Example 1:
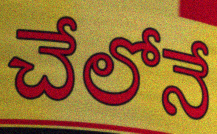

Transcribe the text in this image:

చేలోనే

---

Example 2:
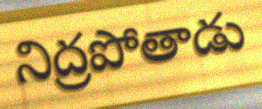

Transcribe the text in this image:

నిద్రపోతాడు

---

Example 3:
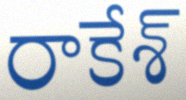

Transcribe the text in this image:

రాకేశ్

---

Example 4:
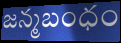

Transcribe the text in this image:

జన్మబంధం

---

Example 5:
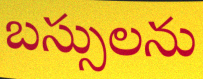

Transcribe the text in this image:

బస్సులను